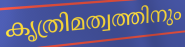
കൃത്രിമത്വത്തിനും